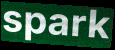
spark